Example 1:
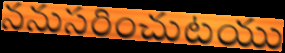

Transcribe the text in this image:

ననుసరించుటయు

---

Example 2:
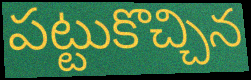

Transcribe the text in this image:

పట్టుకొచ్చిన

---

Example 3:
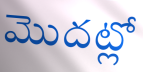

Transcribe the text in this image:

మొదట్లో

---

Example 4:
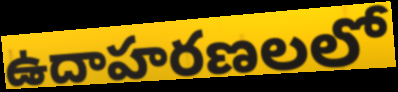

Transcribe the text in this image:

ఉదాహరణలలో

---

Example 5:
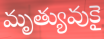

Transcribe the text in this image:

మృత్యువుకై